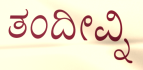
ತಂದೀವ್ನಿ